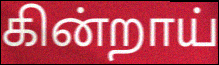
கின்றாய்